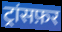
ट्रांसफ़र